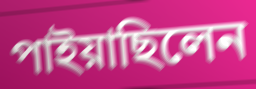
পাইয়াছিলেন